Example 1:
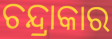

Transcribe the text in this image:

ଚନ୍ଦ୍ରାକାର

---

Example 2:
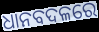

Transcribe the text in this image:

ଧାନବଦଳରେ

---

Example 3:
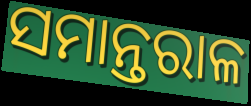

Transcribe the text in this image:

ସମାନ୍ତରାଳ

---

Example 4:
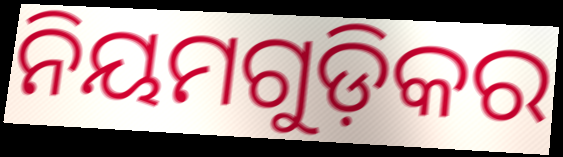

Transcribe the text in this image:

ନିୟମଗୁଡ଼ିକର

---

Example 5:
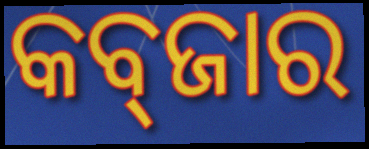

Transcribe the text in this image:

କବ୍‌ଜାର